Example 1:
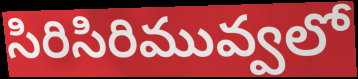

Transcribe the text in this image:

సిరిసిరిమువ్వలో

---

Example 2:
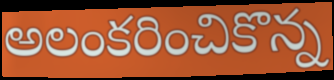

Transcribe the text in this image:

అలంకరించికొన్న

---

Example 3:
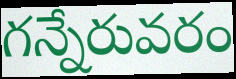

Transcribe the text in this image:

గన్నేరువరం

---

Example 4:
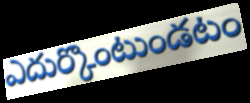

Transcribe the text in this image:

ఎదుర్కొంటుండటం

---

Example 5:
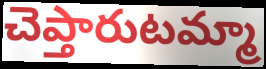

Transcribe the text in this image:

చెప్తారుటమ్మా